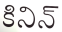
కినిన్